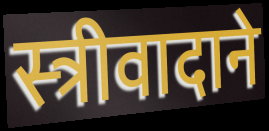
स्त्रीवादाने